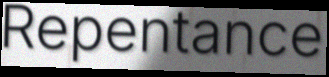
Repentance